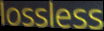
lossless